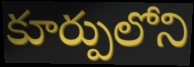
కూర్పులోని